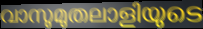
വാസുമുതലാളിയുടെ